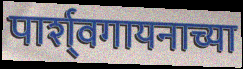
पार्श्वगायनाच्या